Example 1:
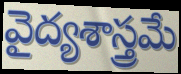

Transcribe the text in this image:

వైద్యశాస్త్రమే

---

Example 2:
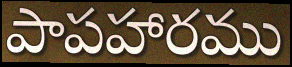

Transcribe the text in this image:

పాపహారము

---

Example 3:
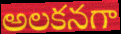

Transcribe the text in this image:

అలకనగా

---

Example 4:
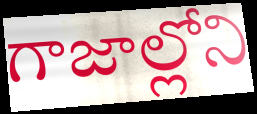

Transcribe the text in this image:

గాజాల్లోని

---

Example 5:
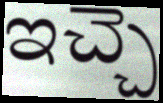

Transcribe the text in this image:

ఇచ్చె